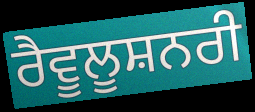
ਰੈਵੂਲੂਸ਼ਨਰੀ